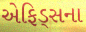
એફિડ્સના